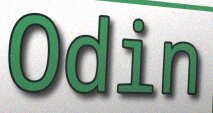
Odin